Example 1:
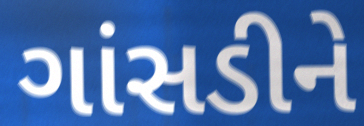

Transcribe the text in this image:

ગાંસડીને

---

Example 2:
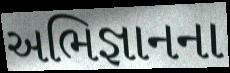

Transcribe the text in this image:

અભિજ્ઞાનના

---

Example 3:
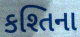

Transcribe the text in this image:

કશ્તિના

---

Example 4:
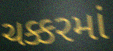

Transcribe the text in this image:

ચક્કરમાં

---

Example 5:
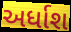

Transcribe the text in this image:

અર્ધાશ